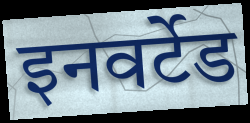
इनवर्टेड